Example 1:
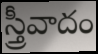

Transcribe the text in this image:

స్త్రీవాదం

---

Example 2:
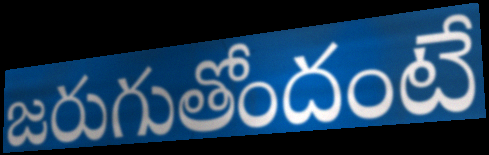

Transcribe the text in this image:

జరుగుతోందంటే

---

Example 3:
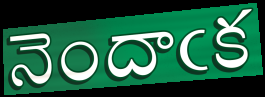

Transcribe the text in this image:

నెందాఁక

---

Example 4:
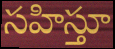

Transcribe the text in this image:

సహిస్తూ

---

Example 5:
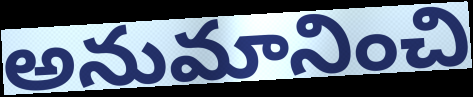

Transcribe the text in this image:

అనుమానించి